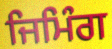
ਜਿਮਿੰਗ